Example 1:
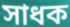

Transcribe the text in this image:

সাধক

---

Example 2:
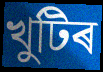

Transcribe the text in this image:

খুটিৰ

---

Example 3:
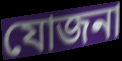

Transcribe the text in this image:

যোজনা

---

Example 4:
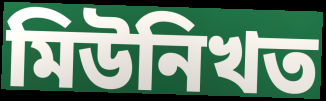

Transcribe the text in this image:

মিউনিখত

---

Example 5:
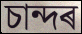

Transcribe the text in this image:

চান্দৰ